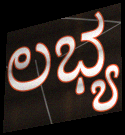
ಲಭ್ಯ